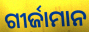
ଗୀର୍ଜାମାନ